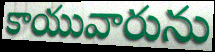
కాయువారును